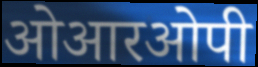
ओआरओपी